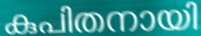
കുപിതനായി